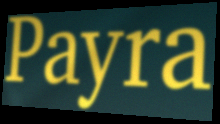
Payra